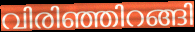
വിരിഞ്ഞിറങ്ങി